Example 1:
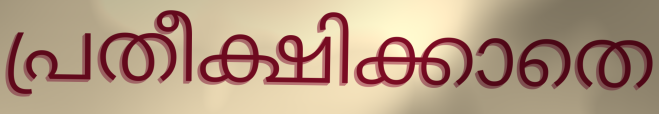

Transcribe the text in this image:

പ്രതീക്ഷിക്കാതെ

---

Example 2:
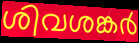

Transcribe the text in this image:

ശിവശങ്കർ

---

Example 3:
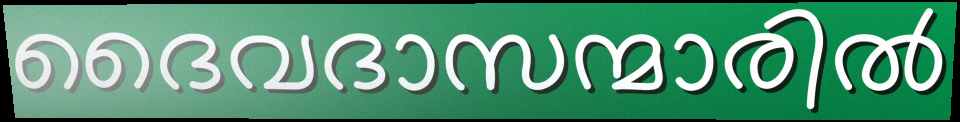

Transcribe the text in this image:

ദൈവദാസന്മാരിൽ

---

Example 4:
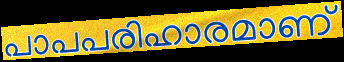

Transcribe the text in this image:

പാപപരിഹാരമാണ്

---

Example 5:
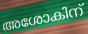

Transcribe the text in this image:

അശോകിന്